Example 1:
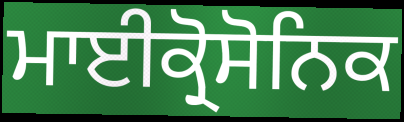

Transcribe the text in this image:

ਮਾਈਕ੍ਰੋਸੋਨਿਕ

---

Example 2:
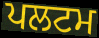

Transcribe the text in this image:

ਪਲਟਮ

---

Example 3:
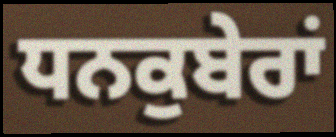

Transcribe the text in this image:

ਧਨਕੁਬੇਰਾਂ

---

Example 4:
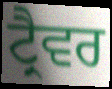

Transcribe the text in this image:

ਟ੍ਰੈਵਰ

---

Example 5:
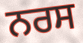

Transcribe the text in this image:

ਨਰਸ